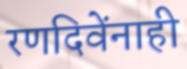
रणदिवेंनाही